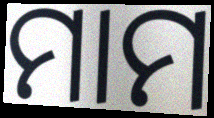
ମାମ